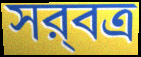
সর্‍বত্র